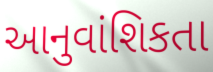
આનુવાંશિકતા